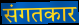
संगतकार